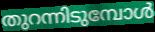
തുറന്നിടുമ്പോൾ